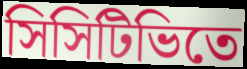
সিসিটিভিতে